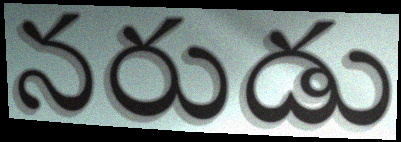
నరుడు